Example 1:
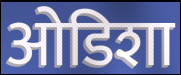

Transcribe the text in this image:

ओडिशा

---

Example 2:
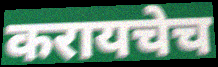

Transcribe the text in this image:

करायचेच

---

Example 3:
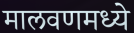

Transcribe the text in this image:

मालवणमध्ये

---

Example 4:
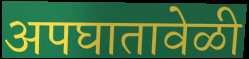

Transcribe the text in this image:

अपघातावेळी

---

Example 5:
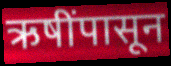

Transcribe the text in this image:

ऋषींपासून